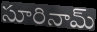
సూరినామ్